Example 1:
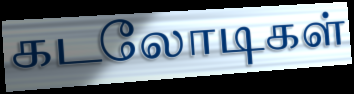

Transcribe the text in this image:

கடலோடிகள்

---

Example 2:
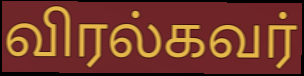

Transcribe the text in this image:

விரல்கவர்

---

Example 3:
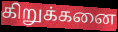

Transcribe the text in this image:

கிறுக்கனை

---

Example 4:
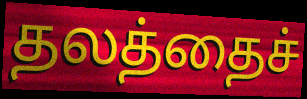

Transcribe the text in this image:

தலத்தைச்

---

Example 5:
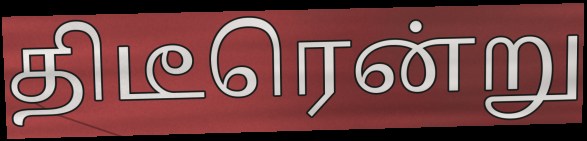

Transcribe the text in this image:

திடீரென்று